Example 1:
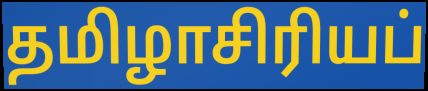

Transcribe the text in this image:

தமிழாசிரியப்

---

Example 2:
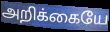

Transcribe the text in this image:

அறிக்கையே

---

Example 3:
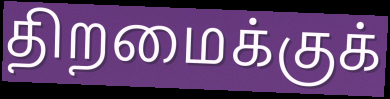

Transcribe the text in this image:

திறமைக்குக்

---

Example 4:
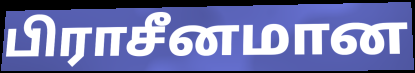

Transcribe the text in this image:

பிராசீனமான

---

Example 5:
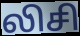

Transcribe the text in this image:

லிசி